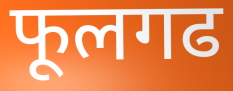
फूलगढ